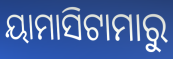
ୟାମାସିଟାମାରୁ